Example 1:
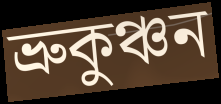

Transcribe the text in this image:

ভ্রুকুঞ্চন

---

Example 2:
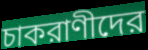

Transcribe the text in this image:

চাকরাণীদের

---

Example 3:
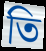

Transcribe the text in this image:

তি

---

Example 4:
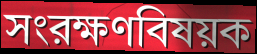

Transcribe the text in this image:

সংরক্ষণবিষয়ক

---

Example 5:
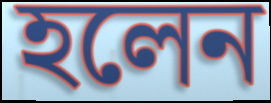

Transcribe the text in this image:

হলেন